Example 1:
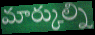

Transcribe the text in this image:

మార్కుల్ని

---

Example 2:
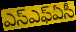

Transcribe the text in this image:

ఎస్ఎఫ్ఏసీ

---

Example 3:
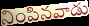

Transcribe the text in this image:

నింపినవాడు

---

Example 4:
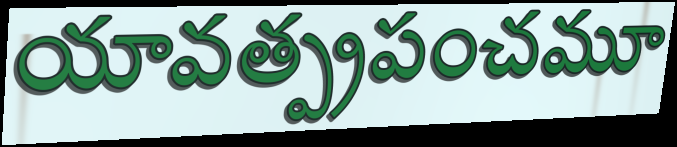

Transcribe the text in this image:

యావత్ప్రపంచమూ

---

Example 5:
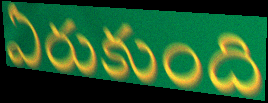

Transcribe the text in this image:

ఏరుకుంది